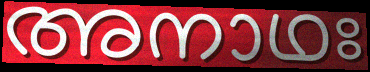
അനാഥഃ